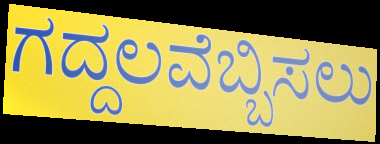
ಗದ್ದಲವೆಬ್ಬಿಸಲು